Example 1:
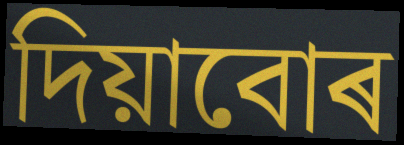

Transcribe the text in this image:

দিয়াবোৰ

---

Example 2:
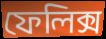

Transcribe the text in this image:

ফেলিক্স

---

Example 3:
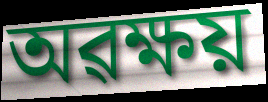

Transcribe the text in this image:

অৱক্ষয়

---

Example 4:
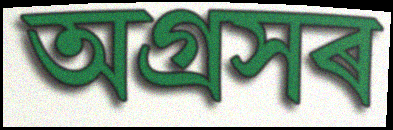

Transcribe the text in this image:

অগ্ৰসৰ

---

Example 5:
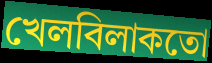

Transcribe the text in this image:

খেলবিলাকতো